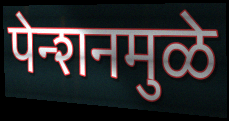
पेन्शनमुळे